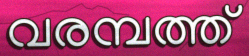
വരമ്പത്ത്